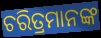
ଚରିତ୍ରମାନଙ୍କ